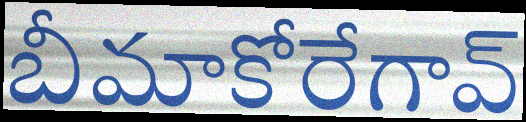
బీమాకోరేగావ్